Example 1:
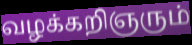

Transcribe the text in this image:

வழக்கறிஞரும்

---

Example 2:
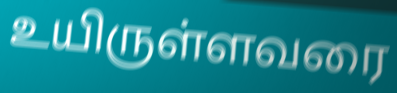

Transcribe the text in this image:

உயிருள்ளவரை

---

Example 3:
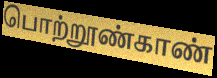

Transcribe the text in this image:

பொற்றூண்காண்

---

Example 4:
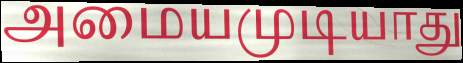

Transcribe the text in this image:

அமையமுடியாது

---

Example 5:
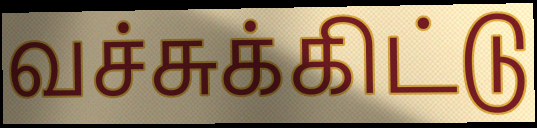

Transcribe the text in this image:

வச்சுக்கிட்டு